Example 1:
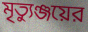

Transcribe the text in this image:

মৃত্যুঞ্জয়ের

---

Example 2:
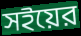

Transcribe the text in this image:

সইয়ের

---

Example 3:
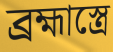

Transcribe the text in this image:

ব্রহ্মাস্ত্রে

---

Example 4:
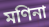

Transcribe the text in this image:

মণিনা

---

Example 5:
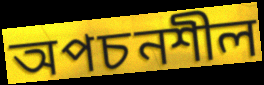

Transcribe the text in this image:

অপচনশীল